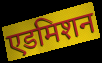
एडमिशन